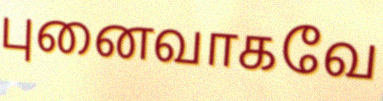
புனைவாகவே